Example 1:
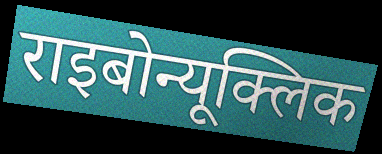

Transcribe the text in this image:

राइबोन्यूक्लिक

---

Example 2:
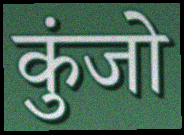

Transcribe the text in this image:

कुंजो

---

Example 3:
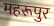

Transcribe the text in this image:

महरूपुर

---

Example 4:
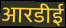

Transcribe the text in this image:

आरडीई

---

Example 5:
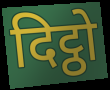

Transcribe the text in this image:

दिट्ठो